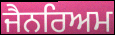
ਜੈਨਰਿਅਮ